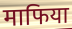
माफिया